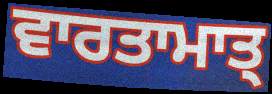
ਵਾਰਤਾਮਾਤ੍